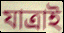
যাত্ৰাই